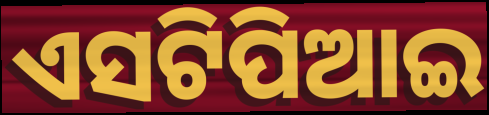
ଏସଟିପିଆଇ